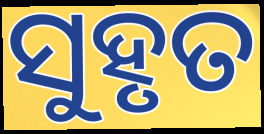
ସୁହୃତ